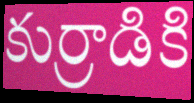
కుర్రాడికి